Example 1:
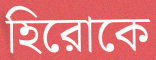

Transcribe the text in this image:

হিরোকে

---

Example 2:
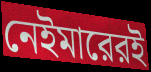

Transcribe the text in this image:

নেইমারেরই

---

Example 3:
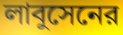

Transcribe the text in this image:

লাবুসেনের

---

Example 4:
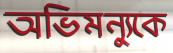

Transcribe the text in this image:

অভিমন্যুকে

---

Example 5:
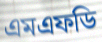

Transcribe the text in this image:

এমএফডি